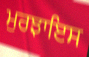
ਮੁਰਝਾਇਸ